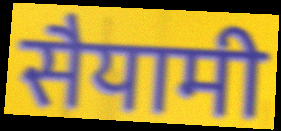
सैयामी